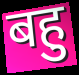
बहु